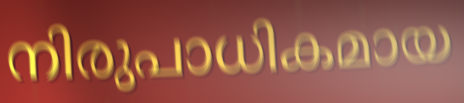
നിരുപാധികമായ